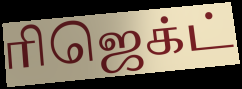
ரிஜெக்ட்